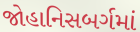
જોહાનિસબર્ગમાં